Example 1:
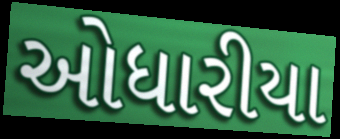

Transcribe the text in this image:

ઓધારીયા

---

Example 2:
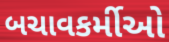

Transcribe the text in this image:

બચાવકર્મીઓ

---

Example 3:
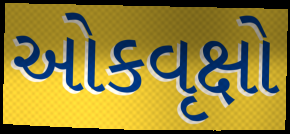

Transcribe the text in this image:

ઓકવૃક્ષો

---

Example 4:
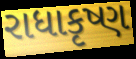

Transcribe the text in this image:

રાધાકૃષ્ણ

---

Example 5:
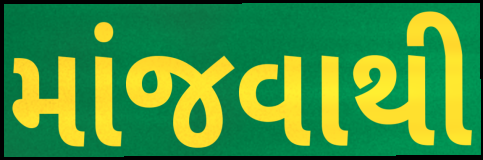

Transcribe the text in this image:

માંજવાથી